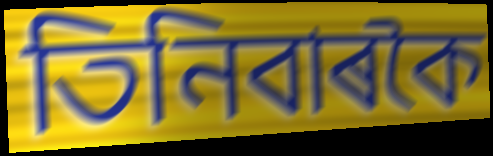
তিনিবাৰকৈ